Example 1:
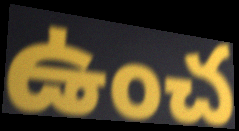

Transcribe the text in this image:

ఉంచ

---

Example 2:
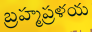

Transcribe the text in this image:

బ్రహ్మప్రళయ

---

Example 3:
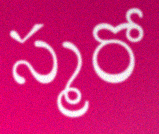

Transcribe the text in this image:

స్మరో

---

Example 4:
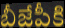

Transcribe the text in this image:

బీజేపీకి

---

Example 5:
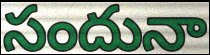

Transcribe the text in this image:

సందునా